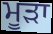
ਮੂੜਾ